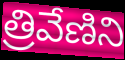
త్రివేణిని